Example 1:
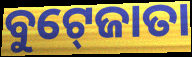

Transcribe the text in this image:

ବୁଟ୍‍ଜୋତା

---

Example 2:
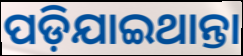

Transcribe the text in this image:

ପଡ଼ିଯାଇଥାନ୍ତା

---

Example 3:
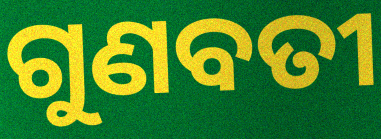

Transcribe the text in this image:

ଗୁଣବତୀ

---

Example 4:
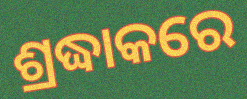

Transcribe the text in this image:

ଶ୍ରଦ୍ଧାକରେ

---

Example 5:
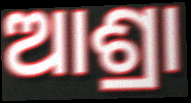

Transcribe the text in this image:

ଆଶ୍ରା